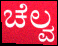
ಚೆಲ್ವ